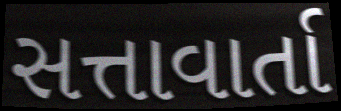
સત્તાવાર્તા